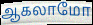
ஆகலாமோ